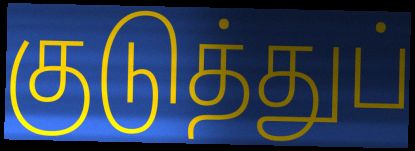
குடுத்துப்